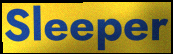
Sleeper